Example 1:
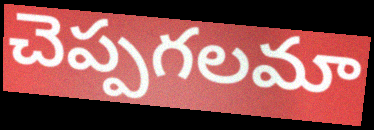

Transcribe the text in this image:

చెప్పగలమా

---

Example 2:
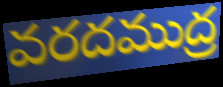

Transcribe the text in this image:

వరదముద్ర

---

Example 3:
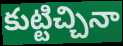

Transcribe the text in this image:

కుట్టిచ్చినా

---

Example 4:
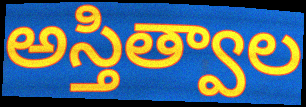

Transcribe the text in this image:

అస్తిత్వాల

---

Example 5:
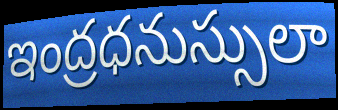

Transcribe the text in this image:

ఇంద్రధనుస్సులా